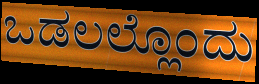
ಒಡಲಲ್ಲೊಂದು